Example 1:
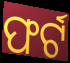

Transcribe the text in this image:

ଫର୍ଟ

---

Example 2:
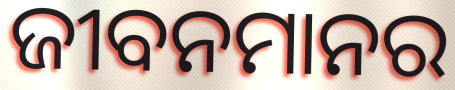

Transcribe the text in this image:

ଜୀବନମାନର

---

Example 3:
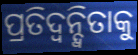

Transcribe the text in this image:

ପ୍ରତିଦ୍ୱନ୍ଦ୍ୱିତାକୁ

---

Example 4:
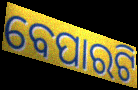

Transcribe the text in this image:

ବେପାରଟି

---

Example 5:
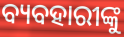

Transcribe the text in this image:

ବ୍ୟବହାରୀଙ୍କୁ